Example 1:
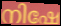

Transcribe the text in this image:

നിഷേ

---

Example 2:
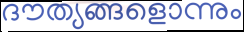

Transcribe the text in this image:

ദൗത്യങ്ങളൊന്നും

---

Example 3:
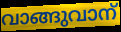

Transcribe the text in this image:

വാങ്ങുവാന്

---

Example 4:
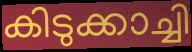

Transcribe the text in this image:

കിടുക്കാച്ചി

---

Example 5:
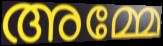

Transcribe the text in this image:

അമ്മേ